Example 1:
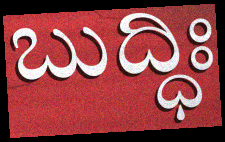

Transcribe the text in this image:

ಬುದ್ಧಿಃ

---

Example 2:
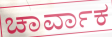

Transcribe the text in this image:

ಚಾರ್ವಾಕ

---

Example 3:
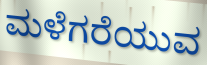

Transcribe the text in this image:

ಮಳೆಗರೆಯುವ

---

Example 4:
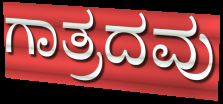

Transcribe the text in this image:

ಗಾತ್ರದವು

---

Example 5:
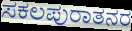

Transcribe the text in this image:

ಸಕಲಪುರಾತನರ